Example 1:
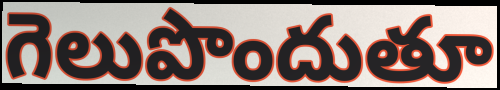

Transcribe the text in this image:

గెలుపొందుతూ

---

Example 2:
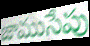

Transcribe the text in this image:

జాముసేపు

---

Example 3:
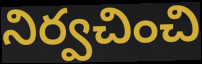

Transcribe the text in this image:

నిర్వచించి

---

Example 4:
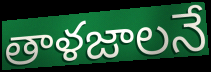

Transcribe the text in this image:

తాళజాలనే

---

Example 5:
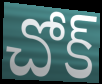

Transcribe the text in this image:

చోక్